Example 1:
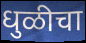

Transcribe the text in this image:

धुळीचा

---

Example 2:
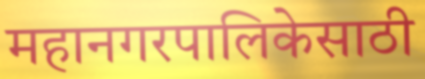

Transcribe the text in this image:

महानगरपालिकेसाठी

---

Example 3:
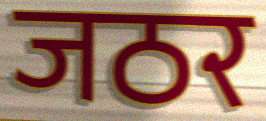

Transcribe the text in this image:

जठर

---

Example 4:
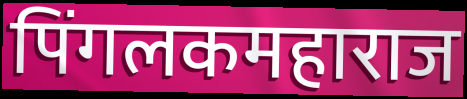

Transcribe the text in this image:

पिंगलकमहाराज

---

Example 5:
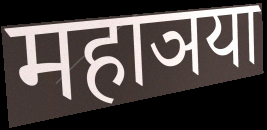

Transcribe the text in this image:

महाञया